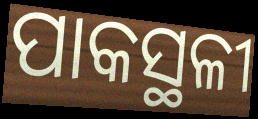
ପାକସ୍ଥଳୀ